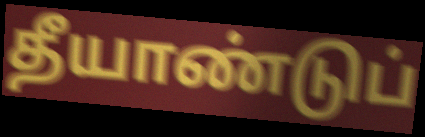
தீயாண்டுப்